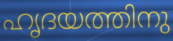
ഹൃദയത്തിനു